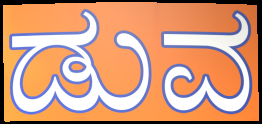
ಡುವ